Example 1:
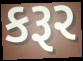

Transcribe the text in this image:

કરૂર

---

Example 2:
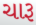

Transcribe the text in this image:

ચારૂ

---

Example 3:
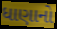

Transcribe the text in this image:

ધાણાનો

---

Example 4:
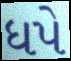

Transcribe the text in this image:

ધપે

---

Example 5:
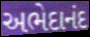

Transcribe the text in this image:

અભેદાનંદ